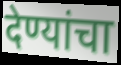
देण्यांचा